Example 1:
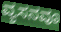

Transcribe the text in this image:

ವ್ಯಸನವೂ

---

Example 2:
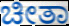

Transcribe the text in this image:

ಚೀತಾ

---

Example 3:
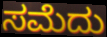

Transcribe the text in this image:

ಸಮೆದು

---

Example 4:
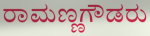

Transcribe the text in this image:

ರಾಮಣ್ಣಗೌಡರು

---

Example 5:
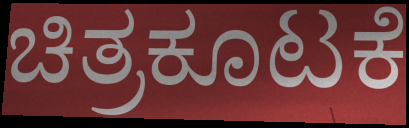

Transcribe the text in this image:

ಚಿತ್ರಕೂಟಕೆ